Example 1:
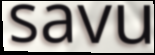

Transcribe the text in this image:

savu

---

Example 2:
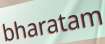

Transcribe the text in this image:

bharatam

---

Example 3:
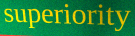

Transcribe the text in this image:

superiority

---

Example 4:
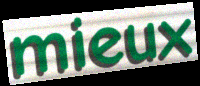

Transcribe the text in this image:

mieux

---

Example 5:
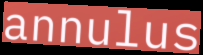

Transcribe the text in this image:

annulus